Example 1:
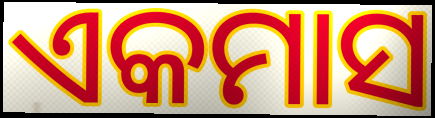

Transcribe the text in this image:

ଏକମାସ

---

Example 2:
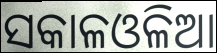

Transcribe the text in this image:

ସକାଳଓଳିଆ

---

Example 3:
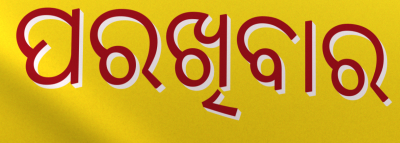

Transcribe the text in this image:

ପରଖିବାର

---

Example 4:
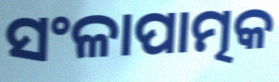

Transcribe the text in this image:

ସଂଳାପାତ୍ମକ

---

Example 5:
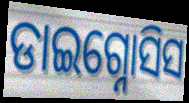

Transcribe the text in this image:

ଡାଇଗ୍ନୋସିସ